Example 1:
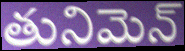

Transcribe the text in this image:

తునిమెన్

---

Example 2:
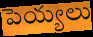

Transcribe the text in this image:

పెయ్యలు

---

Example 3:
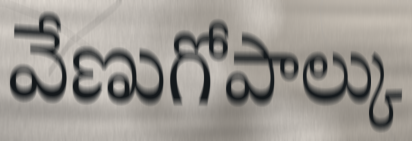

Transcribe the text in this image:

వేణుగోపాల్కు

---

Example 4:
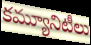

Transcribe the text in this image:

కమ్యూనిటీలు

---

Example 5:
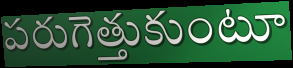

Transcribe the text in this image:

పరుగెత్తుకుంటూ